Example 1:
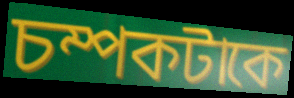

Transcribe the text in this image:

চম্পকটাকে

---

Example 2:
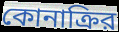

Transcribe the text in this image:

কোনাক্রির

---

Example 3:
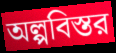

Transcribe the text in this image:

অল্পবিস্তর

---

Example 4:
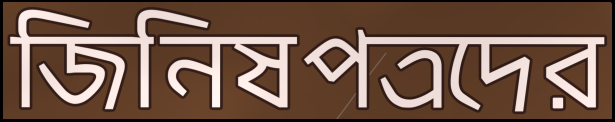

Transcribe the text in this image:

জিনিষপত্রদের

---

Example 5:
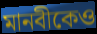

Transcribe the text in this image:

মানবীকেও